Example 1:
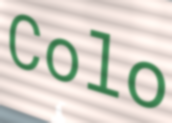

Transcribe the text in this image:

Colo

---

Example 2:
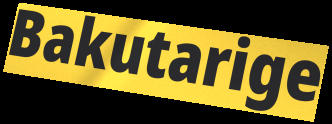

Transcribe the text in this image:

Bakutarige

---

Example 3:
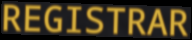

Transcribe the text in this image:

REGISTRAR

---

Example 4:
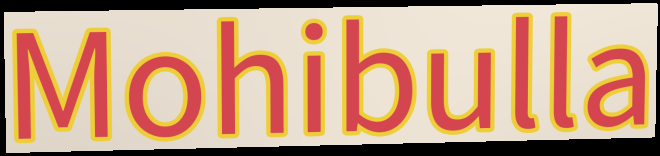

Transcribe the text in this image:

Mohibulla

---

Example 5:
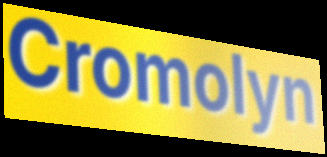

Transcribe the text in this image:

Cromolyn